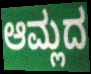
ಆಮ್ಲದ